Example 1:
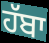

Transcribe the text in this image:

ਹੱਬਾ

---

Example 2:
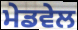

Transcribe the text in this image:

ਮੇਡਵੇਲ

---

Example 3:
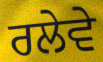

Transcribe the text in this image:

ਰਲੇਵੇ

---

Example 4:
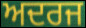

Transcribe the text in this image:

ਅਦਰਜ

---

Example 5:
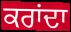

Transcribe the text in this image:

ਕਰਾਂਦਾ